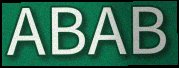
ABAB